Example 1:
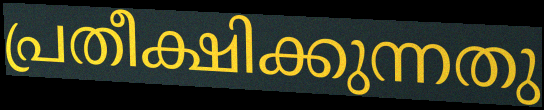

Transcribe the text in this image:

പ്രതീക്ഷിക്കുന്നതു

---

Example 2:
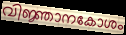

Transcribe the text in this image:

വിജ്ഞാനകോശം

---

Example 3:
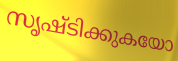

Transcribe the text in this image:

സൃഷ്ടിക്കുകയോ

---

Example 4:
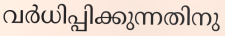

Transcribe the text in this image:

വർധിപ്പിക്കുന്നതിനു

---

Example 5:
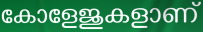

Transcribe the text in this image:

കോളേജുകളാണ്